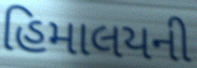
હિમાલયની